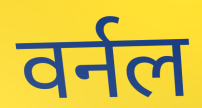
वर्नल